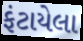
ફંટાયેલા